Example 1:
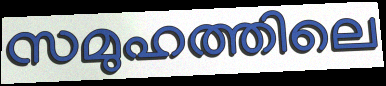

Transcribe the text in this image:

സമുഹത്തിലെ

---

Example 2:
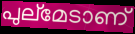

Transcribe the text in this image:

പുല്മേടാണ്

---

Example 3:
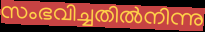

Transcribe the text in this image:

സംഭവിച്ചതിൽനിന്നു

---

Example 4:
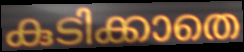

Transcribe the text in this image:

കുടിക്കാതെ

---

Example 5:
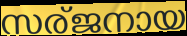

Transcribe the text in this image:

സര്ജനായ